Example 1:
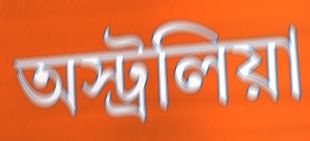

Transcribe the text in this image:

অস্ট্রলিয়া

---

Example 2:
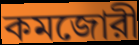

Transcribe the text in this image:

কমজোরী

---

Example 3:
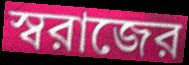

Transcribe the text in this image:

স্বরাজের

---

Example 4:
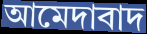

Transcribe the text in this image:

আমেদাবাদ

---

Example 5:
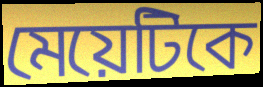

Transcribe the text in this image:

মেয়েটিকে